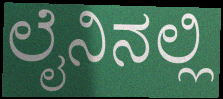
ಲೈನಿನಲ್ಲಿ